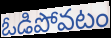
ఓడిపోవటం